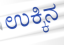
ಉಕ್ಕಿನ